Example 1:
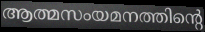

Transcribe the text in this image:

ആത്മസംയമനത്തിന്റെ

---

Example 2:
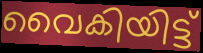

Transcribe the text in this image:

വൈകിയിട്ട്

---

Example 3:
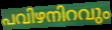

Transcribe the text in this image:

പവിഴനിറവും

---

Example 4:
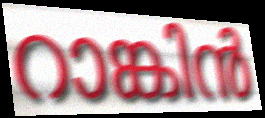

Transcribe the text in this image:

റാങ്കിൻ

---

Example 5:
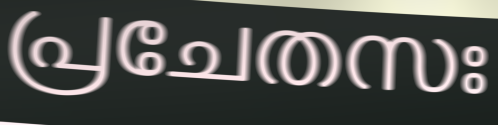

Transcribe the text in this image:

പ്രചേതസഃ